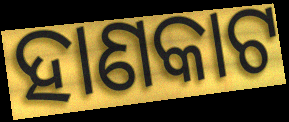
ହାଣକାଟ